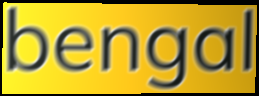
bengal